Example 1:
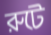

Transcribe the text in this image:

রুটে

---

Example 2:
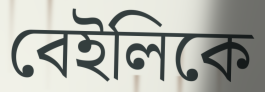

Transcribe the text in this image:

বেইলিকে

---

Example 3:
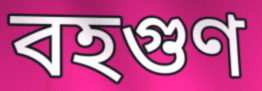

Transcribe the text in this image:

বহগুণ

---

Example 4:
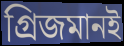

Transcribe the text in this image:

গ্রিজমানই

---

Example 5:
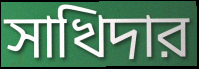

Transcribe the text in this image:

সাখিদার